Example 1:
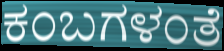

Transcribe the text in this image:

ಕಂಬಗಳಂತೆ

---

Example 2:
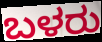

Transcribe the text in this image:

ಬಳರು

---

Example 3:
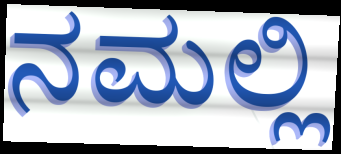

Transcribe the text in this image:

ನಮಲ್ಲಿ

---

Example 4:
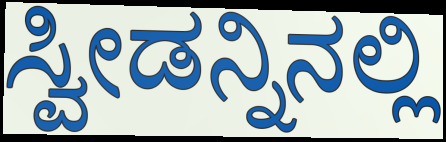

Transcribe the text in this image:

ಸ್ವೀಡನ್ನಿನಲ್ಲಿ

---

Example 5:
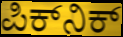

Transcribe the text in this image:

ಪಿಕ್‌ನಿಕ್